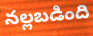
నల్లబడింది